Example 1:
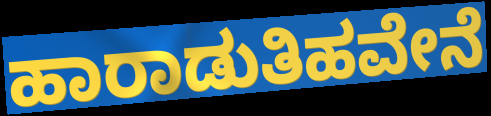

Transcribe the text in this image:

ಹಾರಾಡುತಿಹವೇನೆ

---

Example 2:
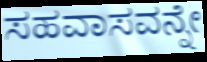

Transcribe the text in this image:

ಸಹವಾಸವನ್ನೇ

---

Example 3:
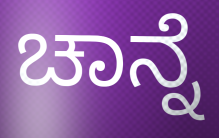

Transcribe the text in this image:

ಚಾನ್ನೆ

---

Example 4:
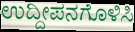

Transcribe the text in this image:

ಉದ್ದೀಪನಗೊಳಿಸಿ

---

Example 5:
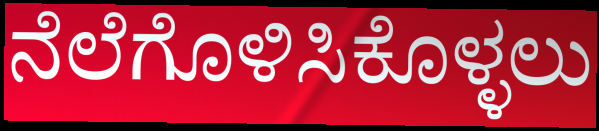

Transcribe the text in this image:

ನೆಲೆಗೊಳಿಸಿಕೊಳ್ಳಲು